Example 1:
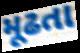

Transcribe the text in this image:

મૂઢતા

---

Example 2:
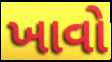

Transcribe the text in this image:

ખાવો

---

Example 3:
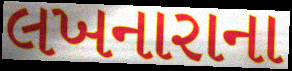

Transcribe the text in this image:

લખનારાના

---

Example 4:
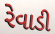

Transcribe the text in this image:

રેવાડી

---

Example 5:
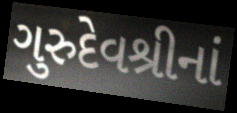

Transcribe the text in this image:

ગુરુદેવશ્રીનાં